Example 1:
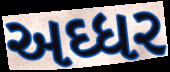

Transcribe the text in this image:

અઘ્ધર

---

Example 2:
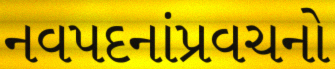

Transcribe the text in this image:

નવપદનાંપ્રવચનો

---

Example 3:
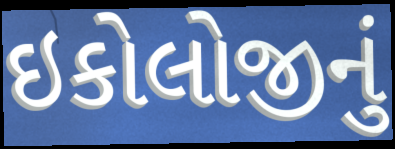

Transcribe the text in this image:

ઇકોલોજીનું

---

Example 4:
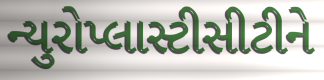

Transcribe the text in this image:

ન્યુરોપ્લાસ્ટીસીટીને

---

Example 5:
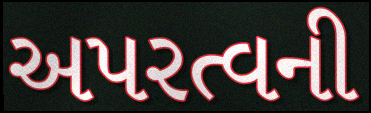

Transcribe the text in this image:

અપરત્વની